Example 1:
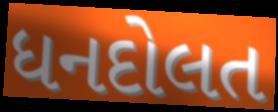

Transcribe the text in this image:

ધનદોલત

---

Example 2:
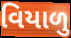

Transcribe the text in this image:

વિયાળુ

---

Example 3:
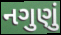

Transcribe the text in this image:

નગુણું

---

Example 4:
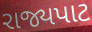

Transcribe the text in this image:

રાજ્યપાટ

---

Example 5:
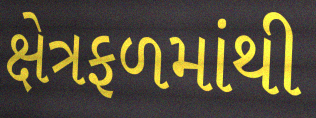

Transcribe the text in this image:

ક્ષેત્રફળમાંથી